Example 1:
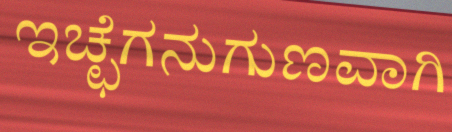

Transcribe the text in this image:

ಇಚ್ಛೆಗನುಗುಣವಾಗಿ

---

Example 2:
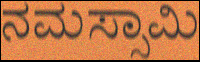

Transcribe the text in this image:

ನಮಸ್ಸಾಮಿ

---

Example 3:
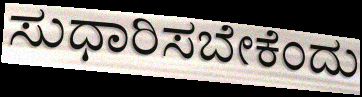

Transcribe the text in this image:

ಸುಧಾರಿಸಬೇಕೆಂದು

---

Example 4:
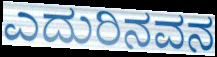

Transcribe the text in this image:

ಎದುರಿನವನ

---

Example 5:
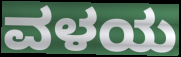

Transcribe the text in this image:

ವಳಯ